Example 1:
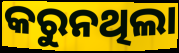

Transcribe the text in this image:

କରୁନଥିଲା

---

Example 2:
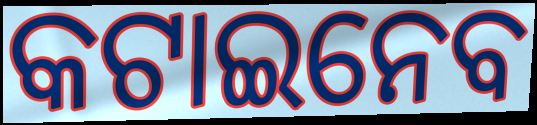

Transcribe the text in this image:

କଟାଇନେବ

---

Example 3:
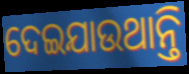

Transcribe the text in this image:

ଦେଇଯାଉଥାନ୍ତି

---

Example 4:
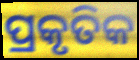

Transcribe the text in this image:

ପ୍ରକୃତିକ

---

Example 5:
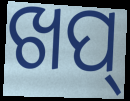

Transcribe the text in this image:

ଖପ୍